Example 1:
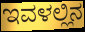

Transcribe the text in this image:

ಇವಳಲ್ಲಿನ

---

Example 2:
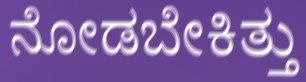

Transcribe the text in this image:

ನೋಡಬೇಕಿತ್ತು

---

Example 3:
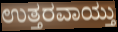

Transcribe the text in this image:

ಉತ್ತರವಾಯ್ತು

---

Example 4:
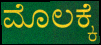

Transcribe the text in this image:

ಮೊಲಕ್ಕೆ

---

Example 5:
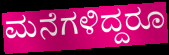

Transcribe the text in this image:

ಮನೆಗಳಿದ್ದರೂ